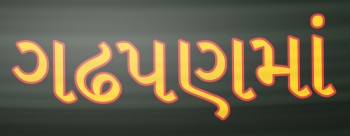
ગઢપણમાં